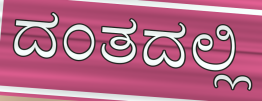
ದಂತದಲ್ಲಿ